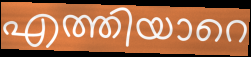
എത്തിയാറെ